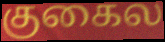
குகைல